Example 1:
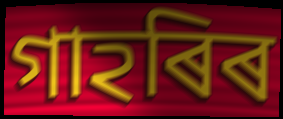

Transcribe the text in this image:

গাহৰিৰ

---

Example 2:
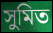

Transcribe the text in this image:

সুমিত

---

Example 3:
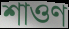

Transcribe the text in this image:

শাওণ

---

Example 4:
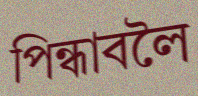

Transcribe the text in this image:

পিন্ধাবলৈ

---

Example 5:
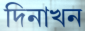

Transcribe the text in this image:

দিনাখন